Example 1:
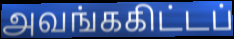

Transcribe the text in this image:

அவங்ககிட்டப்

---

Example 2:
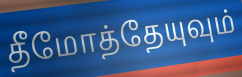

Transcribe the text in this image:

தீமோத்தேயுவும்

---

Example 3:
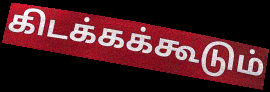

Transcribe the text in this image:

கிடக்கக்கூடும்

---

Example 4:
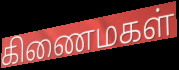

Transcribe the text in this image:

கிணைமகள்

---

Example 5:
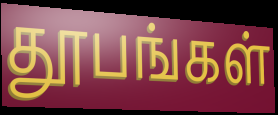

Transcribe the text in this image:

தூபங்கள்